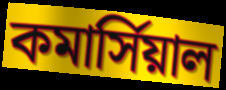
কমার্সিয়াল